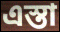
এস্তা